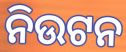
ନିଉଟନ